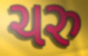
ચરુ